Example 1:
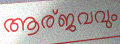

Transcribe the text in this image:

ആര്ജവവും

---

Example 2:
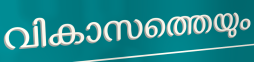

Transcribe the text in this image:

വികാസത്തെയും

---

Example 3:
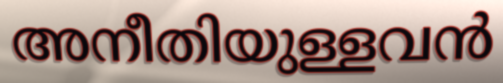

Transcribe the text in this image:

അനീതിയുള്ളവൻ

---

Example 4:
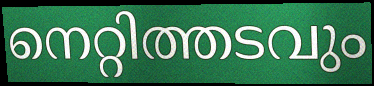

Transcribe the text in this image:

നെറ്റിത്തടവും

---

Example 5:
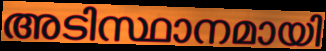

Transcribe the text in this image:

അടിസ്ഥാനമായി